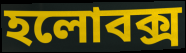
হলোবক্স